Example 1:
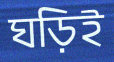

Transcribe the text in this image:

ঘড়িই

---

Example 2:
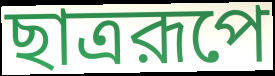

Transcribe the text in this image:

ছাত্ররূপে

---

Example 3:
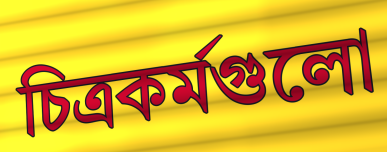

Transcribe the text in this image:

চিত্রকর্মগুলো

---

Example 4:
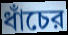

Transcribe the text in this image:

ধাঁচের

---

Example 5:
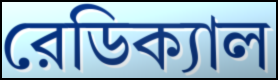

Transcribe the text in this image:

রেডিক্যাল